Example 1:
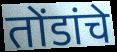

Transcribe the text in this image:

तोंडांचे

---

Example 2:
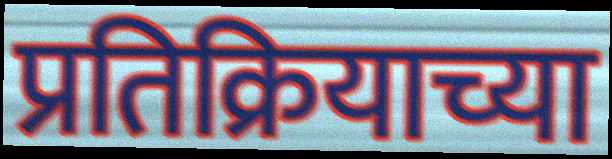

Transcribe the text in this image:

प्रतिक्रियाच्या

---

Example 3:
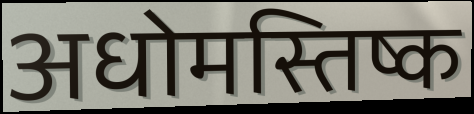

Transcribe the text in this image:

अधोमस्तिष्क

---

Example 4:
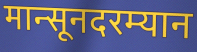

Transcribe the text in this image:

मान्सूनदरम्यान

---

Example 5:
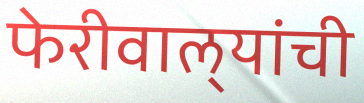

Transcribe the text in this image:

फेरीवाल्यांची